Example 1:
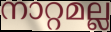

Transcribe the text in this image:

നാറ്റമല്ല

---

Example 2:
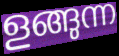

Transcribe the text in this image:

ളങ്ങുന്ന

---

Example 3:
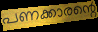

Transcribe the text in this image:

പണക്കാരന്റെ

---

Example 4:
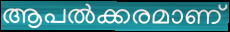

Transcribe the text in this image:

ആപൽക്കരമാണ്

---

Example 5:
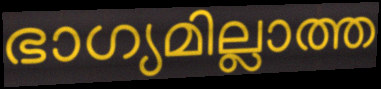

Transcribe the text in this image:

ഭാഗ്യമില്ലാത്ത